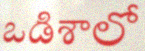
ఒడిశాలో